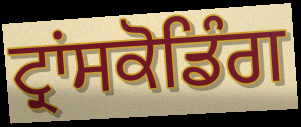
ਟ੍ਰਾਂਸਕੋਡਿੰਗ